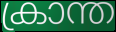
ക്രാന്ത